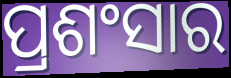
ପ୍ରଶଂସାର